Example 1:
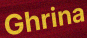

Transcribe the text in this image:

Ghrina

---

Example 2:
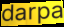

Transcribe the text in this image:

darpa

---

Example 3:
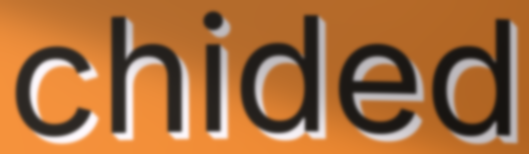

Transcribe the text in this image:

chided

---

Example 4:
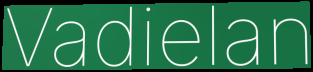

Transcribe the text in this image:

Vadielan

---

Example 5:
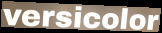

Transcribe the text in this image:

versicolor